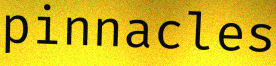
pinnacles